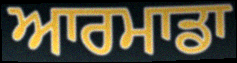
ਆਰਮਾਡਾ